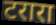
टरारा